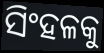
ସିଂହଳକୁ